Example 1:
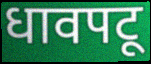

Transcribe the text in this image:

धावपटू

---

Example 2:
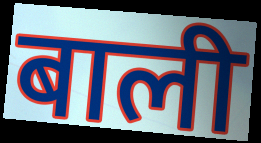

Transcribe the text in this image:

बाली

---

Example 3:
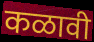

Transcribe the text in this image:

कळावी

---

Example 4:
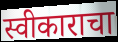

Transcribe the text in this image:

स्वीकाराचा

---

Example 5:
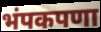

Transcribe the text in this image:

भंपकपणा